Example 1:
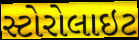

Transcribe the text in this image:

સ્ટોરોલાઇટ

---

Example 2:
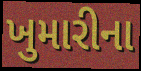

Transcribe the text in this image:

ખુમારીના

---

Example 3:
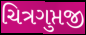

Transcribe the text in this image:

ચિત્રગુપ્તજી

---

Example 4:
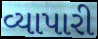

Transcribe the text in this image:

વ્યાપારી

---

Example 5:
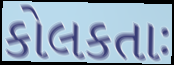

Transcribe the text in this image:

કોલકતાઃ